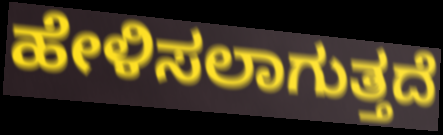
ಹೇಳಿಸಲಾಗುತ್ತದೆ